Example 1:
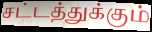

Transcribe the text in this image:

சட்டத்துக்கும்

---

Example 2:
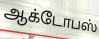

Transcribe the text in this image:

ஆக்டோபஸ்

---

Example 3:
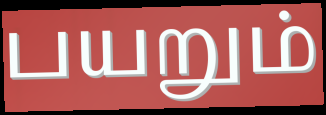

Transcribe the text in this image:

பயறும்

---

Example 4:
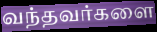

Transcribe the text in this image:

வந்தவர்களை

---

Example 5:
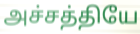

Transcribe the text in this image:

அச்சத்தியே